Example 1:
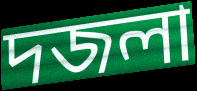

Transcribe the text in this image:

দজলা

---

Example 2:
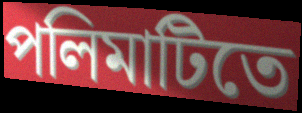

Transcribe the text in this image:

পলিমাটিতে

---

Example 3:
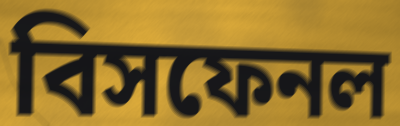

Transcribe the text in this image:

বিসফেনল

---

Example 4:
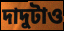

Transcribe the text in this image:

দাদুটাও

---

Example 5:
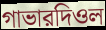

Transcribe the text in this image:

গাভারদিওল